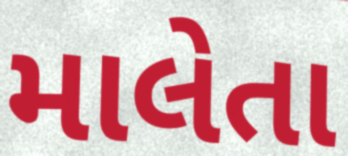
માલેતા